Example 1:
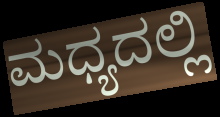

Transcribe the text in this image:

ಮಧ್ಯದಲ್ಲಿ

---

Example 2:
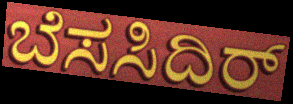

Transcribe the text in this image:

ಬೆಸಸಿದಿರ್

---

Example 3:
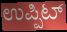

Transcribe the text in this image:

ಉಪ್ಪಿಟ್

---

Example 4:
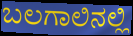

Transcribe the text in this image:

ಬಲಗಾಲಿನಲ್ಲಿ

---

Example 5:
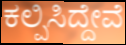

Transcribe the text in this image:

ಕಲ್ಪಿಸಿದ್ದೇವೆ